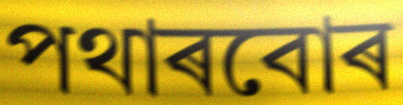
পথাৰবোৰ